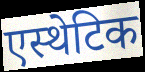
एस्थेटिक